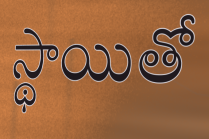
స్థాయితో